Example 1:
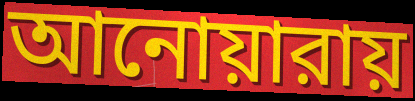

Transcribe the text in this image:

আনোয়ারায়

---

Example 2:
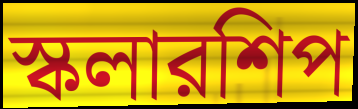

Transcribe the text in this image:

স্কলারশিপ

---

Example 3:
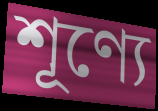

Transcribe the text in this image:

শূণ্যে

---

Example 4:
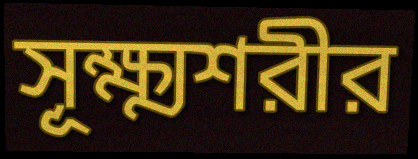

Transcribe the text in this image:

সূক্ষ্মশরীর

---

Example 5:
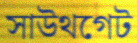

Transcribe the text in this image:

সাউথগেট